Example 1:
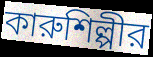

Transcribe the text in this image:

কারুশিল্পীর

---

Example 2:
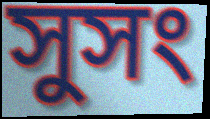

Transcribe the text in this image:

সুসং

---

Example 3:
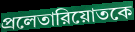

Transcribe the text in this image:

প্রলেতারিয়োতকে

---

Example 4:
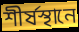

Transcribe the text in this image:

শীর্ষস্থানে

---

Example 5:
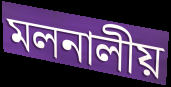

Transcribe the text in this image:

মলনালীয়